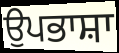
ਉਪਭਾਸ਼ਾ